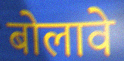
बोलावे